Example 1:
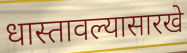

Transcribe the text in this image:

धास्तावल्यासारखे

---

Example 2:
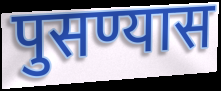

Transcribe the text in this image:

पुसण्यास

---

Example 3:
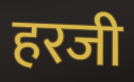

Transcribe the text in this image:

हरजी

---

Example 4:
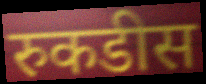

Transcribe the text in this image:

रुकडीस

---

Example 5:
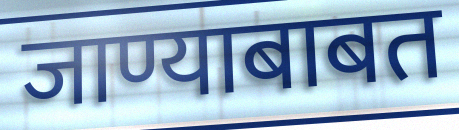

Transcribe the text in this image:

जाण्याबाबत